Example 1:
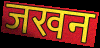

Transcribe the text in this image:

जखन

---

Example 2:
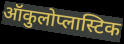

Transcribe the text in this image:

ऑकुलोप्लास्टिक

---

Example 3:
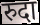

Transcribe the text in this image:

रुदा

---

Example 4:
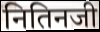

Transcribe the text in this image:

नितिनजी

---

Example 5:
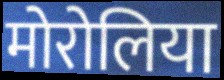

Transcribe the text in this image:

मोरोलिया